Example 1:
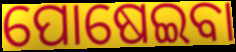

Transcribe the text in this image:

ପୋଷେଇବା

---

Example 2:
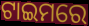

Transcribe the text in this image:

ଟାଇମରେ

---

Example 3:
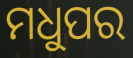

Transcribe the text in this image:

ମଧୁପର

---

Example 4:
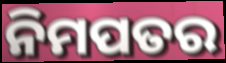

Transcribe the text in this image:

ନିମପତର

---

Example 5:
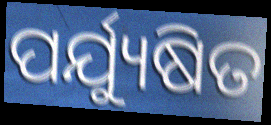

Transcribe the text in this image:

ପର୍ଯ୍ୟୁଷିତ